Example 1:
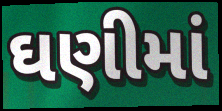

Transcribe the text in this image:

ઘણીમાં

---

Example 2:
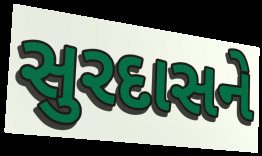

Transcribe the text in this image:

સુરદાસને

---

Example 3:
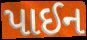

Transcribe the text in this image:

પાઈન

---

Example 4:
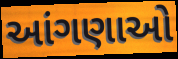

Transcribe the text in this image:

આંગણાઓ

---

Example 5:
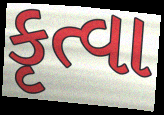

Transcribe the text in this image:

કૃત્વા